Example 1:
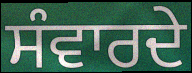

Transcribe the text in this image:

ਸੰਵਾਰਦੇ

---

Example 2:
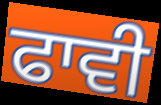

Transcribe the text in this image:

ਫਾਵੀ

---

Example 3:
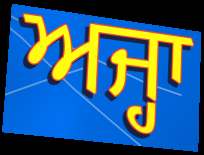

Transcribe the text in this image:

ਅਜ੍ਹਾ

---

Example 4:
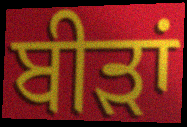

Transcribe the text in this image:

ਬੀੜਾਂ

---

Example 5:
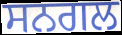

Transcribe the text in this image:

ਸਨਗਲ